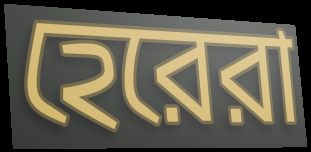
হেরেরা